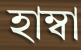
হাম্বা